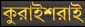
কুরাইশরাই